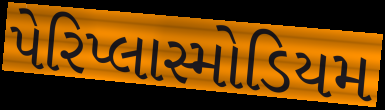
પેરિપ્લાસ્મોડિયમ